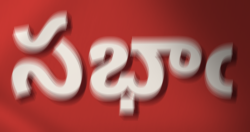
సభాఁ